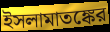
ইসলামাতঙ্কের